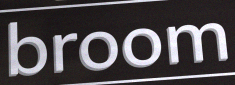
broom